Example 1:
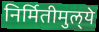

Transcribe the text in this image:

निर्मितीमुल्ये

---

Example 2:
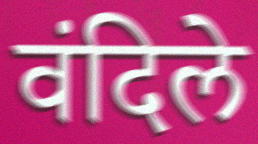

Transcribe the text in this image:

वंदिले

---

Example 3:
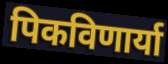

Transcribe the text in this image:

पिकविणार्या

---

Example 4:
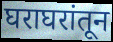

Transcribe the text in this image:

घराघरांतून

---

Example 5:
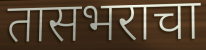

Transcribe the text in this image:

तासभराचा